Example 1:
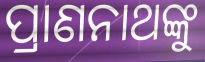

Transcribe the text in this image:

ପ୍ରାଣନାଥଙ୍କୁ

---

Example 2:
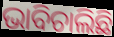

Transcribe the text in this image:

ଭାବିଚାଲିଛି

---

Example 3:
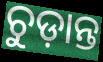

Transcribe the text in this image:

ଚୁଡ଼ାନ୍ତ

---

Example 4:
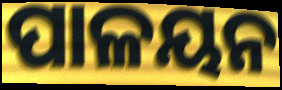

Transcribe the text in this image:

ପାଳୟନ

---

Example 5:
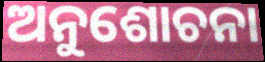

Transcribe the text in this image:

ଅନୁଶୋଚନା